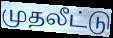
முதலீட்டு